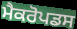
ਮੈਕਰੋਪਡਸ